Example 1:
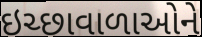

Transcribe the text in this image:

ઇચ્છાવાળાઓને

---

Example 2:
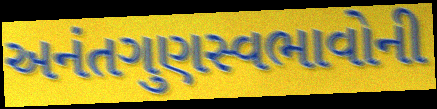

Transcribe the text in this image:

અનંતગુણસ્વભાવોની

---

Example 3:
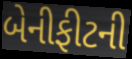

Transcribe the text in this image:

બેનીફીટની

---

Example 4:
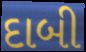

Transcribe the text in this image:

દાબી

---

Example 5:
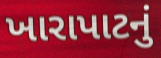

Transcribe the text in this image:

ખારાપાટનું